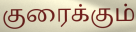
குரைக்கும்